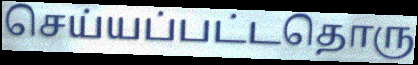
செய்யப்பட்டதொரு